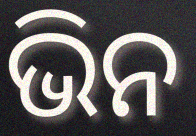
ଭିନ